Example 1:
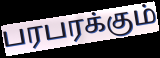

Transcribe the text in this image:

பரபரக்கும்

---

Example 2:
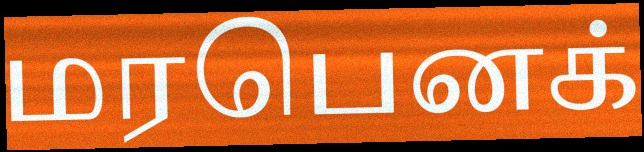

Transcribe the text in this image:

மரபெனக்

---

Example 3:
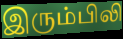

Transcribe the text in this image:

இரும்பிலி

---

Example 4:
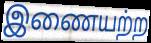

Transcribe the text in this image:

இணையற்ற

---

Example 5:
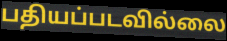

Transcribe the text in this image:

பதியப்படவில்லை